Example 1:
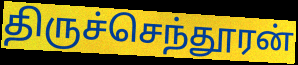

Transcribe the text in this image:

திருச்செந்தூரன்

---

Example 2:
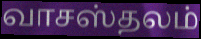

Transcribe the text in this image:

வாசஸ்தலம்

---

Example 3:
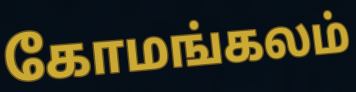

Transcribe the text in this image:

கோமங்கலம்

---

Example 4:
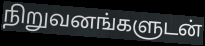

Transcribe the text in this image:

நிறுவனங்களுடன்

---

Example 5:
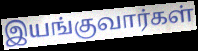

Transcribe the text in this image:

இயங்குவார்கள்